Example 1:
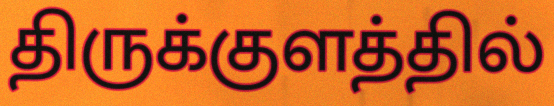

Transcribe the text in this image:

திருக்குளத்தில்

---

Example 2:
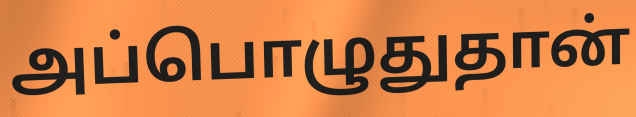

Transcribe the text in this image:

அப்பொழுதுதான்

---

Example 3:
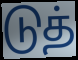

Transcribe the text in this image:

டுத்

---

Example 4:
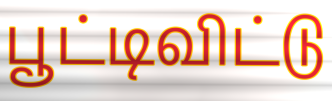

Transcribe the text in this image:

பூட்டிவிட்டு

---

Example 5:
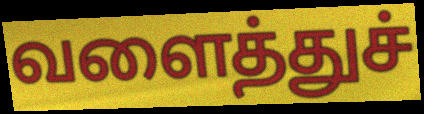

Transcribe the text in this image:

வளைத்துச்